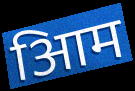
आिम